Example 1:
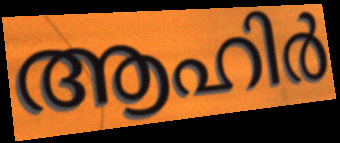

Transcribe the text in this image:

ആഹിർ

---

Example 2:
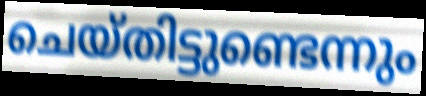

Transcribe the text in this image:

ചെയ്തിട്ടുണ്ടെന്നും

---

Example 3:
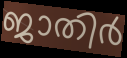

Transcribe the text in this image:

ജാതിർ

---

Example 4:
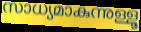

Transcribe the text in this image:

സാധ്യമാകുന്നുള്ളൂ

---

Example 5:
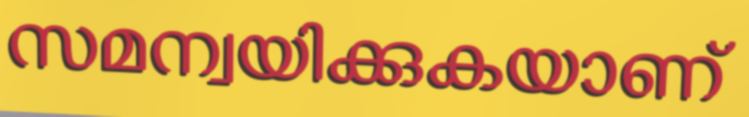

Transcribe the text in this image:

സമന്വയിക്കുകയാണ്